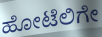
ಹೋಟೆಲಿಗೇ